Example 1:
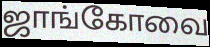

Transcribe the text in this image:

ஜாங்கோவை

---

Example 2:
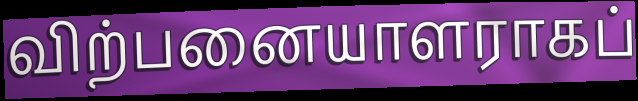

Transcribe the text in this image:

விற்பனையாளராகப்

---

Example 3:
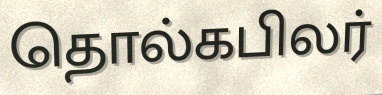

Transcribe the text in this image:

தொல்கபிலர்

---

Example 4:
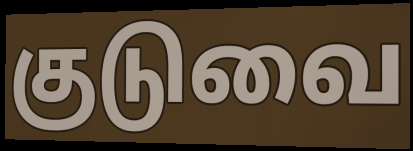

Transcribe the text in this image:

குடுவை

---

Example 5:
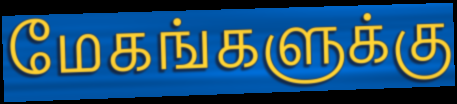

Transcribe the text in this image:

மேகங்களுக்கு